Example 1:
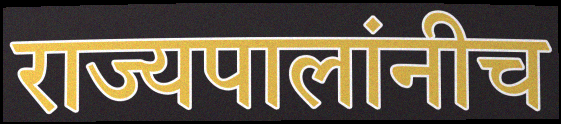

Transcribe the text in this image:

राज्यपालांनीच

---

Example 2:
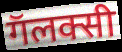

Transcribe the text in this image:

गॅलक्सी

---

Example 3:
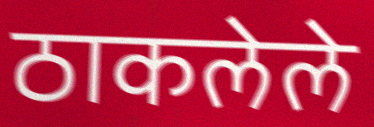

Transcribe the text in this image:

ठाकलेले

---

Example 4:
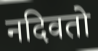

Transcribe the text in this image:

नदिवतो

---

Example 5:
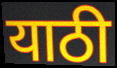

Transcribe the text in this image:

याठी